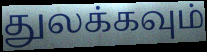
துலக்கவும்